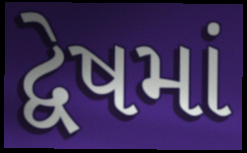
દ્વેષમાં